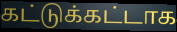
கட்டுக்கட்டாக